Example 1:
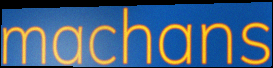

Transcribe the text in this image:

machans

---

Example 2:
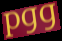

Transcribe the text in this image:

pgg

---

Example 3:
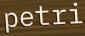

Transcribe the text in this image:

petri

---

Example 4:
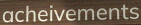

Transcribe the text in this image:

acheivements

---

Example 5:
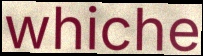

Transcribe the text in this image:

whiche